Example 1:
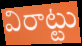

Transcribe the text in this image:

విరాట్టు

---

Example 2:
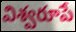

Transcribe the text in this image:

విశ్వరూపే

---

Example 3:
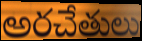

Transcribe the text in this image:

అరచేతులు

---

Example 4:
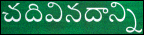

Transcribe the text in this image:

చదివినదాన్ని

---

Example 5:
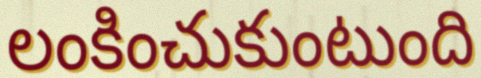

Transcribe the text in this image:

లంకించుకుంటుంది